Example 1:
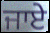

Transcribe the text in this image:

ਜਾਏੇ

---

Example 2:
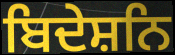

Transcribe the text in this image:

ਬਿਦੇਸ਼ਨਿ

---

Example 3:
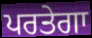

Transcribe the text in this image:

ਪਰਤੇਗਾ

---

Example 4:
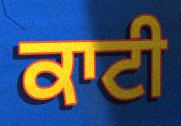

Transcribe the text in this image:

ਕਾਟੀ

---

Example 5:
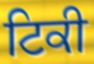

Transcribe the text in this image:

ਟਿਕੀ